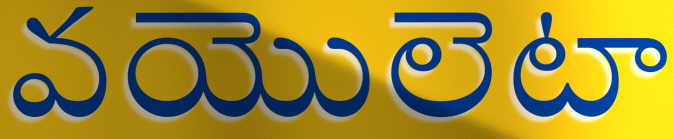
వయొలెటా